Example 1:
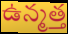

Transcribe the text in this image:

ఉన్మత్త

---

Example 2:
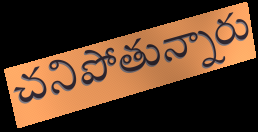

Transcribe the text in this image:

చనిపోతున్నారు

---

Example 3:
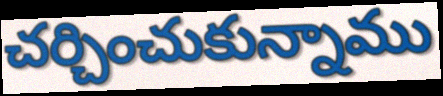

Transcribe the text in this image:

చర్చించుకున్నాము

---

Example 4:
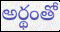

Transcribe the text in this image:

అర్థంతో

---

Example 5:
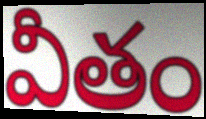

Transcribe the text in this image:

వీతం